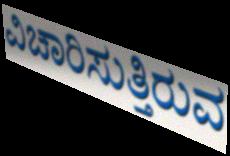
ವಿಚಾರಿಸುತ್ತಿರುವ